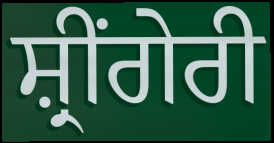
ਸ਼੍ਰੀਂਗੇਰੀ